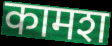
कामश